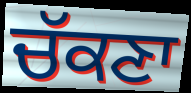
ਚੱਕਣਾ